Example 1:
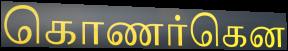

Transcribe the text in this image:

கொணர்கென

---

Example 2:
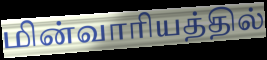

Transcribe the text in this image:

மின்வாரியத்தில்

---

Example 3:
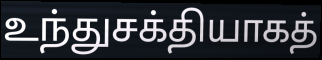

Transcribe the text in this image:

உந்துசக்தியாகத்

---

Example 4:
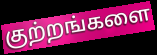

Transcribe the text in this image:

குற்றங்களை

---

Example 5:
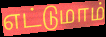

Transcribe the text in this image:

எட்டுமாம்